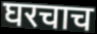
घरचाच